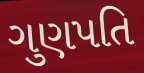
ગુણપતિ